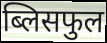
ब्लिसफुल